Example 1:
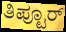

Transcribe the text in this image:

ತಿಪ್ಟೂರ್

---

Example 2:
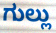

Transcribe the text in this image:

ಗುಲ್ಲು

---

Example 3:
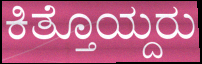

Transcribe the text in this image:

ಕಿತ್ತೊಯ್ದರು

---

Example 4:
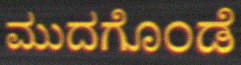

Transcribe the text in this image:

ಮುದಗೊಂಡೆ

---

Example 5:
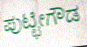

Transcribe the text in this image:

ಪುಟ್ಟೇಗೌಡ